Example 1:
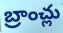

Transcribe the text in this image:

బ్రాంచ్లు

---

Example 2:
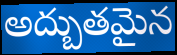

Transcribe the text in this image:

అద్బుతమైన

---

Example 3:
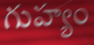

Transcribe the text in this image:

గుహ్యం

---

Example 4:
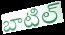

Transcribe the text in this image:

బాటిల్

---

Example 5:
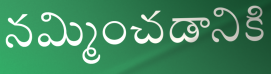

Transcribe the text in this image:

నమ్మించడానికి